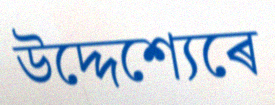
উদ্দেশ্যেৰে